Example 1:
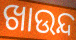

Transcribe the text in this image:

ଖାଉନ୍ଦ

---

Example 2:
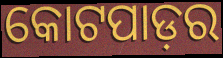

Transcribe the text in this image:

କୋଟପାଡ଼ର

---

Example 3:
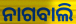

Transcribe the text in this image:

ନାଗବାଲି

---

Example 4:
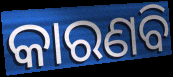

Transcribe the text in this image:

କାରଣବି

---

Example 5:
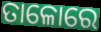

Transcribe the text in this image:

ତାଳୋରେ